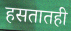
हसतातही